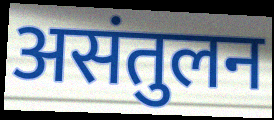
असंतुलन